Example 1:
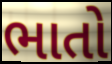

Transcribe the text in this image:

ભાતો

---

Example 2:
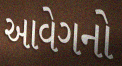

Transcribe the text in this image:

આવેગનો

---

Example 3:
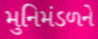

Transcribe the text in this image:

મુનિમંડળને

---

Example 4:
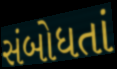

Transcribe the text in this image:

સંબોધતાં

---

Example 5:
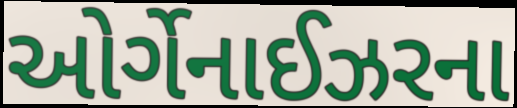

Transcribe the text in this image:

ઓર્ગેનાઈઝરના